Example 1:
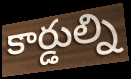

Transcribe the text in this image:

కార్డుల్ని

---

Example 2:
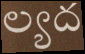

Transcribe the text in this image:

ల్యద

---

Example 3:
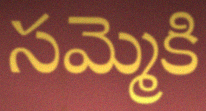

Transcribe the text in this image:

సమ్మెకి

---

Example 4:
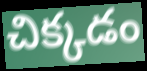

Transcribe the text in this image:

చిక్కడం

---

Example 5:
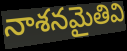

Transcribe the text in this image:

నాశనమైతివి